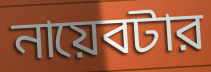
নায়েবটার